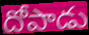
దోపాడు